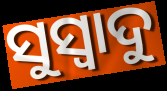
ସୁସ୍ଵାଦୁ